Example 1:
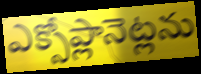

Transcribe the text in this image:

ఎక్సోప్లానెట్లను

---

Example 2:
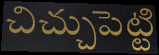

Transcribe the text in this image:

చిచ్చుపెట్టి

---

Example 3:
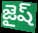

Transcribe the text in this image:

జైష్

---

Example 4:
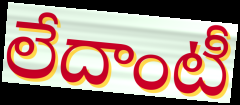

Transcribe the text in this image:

లేదాంటీ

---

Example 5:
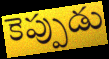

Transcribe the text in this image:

కెప్పుడు